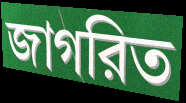
জাগরিত